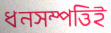
ধনসম্পত্তিই